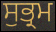
ਸੁਭ੍ਰਮ